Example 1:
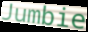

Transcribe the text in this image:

Jumbie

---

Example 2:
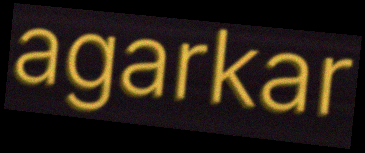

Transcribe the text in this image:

agarkar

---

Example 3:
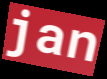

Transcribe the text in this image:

jan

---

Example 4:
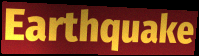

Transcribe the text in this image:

Earthquake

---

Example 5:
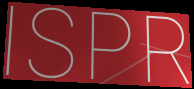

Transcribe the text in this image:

ISPR